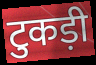
टुकड़ी